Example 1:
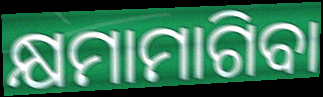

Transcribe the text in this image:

କ୍ଷମାମାଗିବା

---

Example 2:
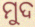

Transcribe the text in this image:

ମୁଦ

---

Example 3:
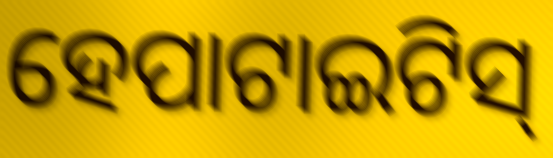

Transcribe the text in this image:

ହେପାଟାଇଟିସ୍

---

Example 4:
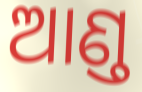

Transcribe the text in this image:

ଆଣ୍ଡ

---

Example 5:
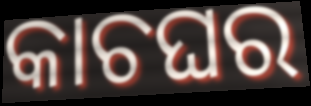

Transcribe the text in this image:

କାଚଘର